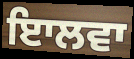
ਇਾਲਵਾ